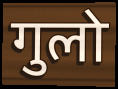
गुलो